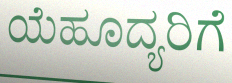
ಯೆಹೂದ್ಯರಿಗೆ